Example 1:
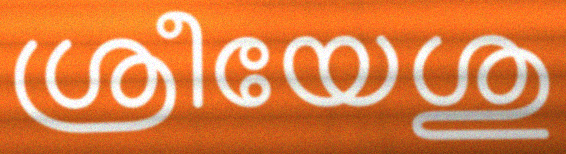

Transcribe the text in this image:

ശ്രീയേശു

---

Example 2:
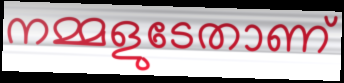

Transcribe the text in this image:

നമ്മളുടേതാണ്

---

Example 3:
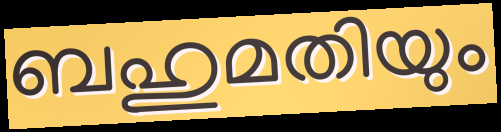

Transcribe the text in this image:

ബഹുമതിയും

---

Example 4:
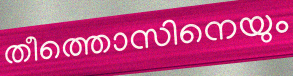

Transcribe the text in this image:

തീത്തൊസിനെയും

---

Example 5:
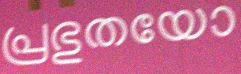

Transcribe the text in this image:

പ്രഭുതയോ